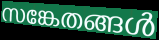
സങ്കേതങ്ങൾ